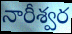
నారీశ్వర